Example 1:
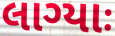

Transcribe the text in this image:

લાગ્યાઃ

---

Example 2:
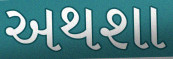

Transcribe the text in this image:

અથશા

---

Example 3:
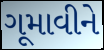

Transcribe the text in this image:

ગૂમાવીને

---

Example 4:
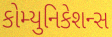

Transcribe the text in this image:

કોમ્યુનિકેશન્સ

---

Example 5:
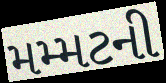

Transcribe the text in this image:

મમ્મટની